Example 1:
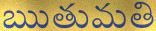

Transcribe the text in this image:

ఋతుమతి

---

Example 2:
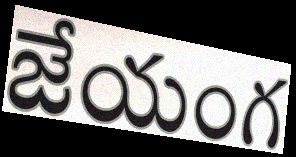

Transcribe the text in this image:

జేయంగ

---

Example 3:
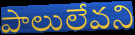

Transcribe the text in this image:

పాలులేవని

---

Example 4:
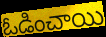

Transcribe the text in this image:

ఓడించాయి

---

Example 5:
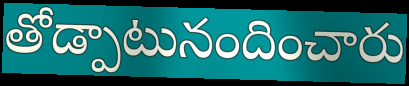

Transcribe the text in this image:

తోడ్పాటునందించారు